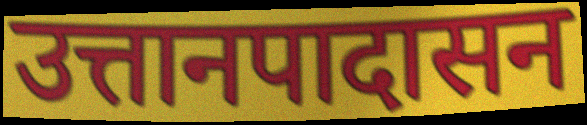
उत्तानपादासन